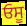
ਓਸੂ